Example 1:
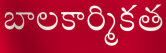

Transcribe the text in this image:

బాలకార్మికత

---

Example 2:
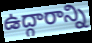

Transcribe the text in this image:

ఉద్గారాన్ని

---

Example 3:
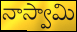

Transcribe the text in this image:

నాస్వామి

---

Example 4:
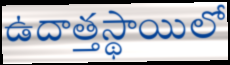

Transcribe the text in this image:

ఉదాత్తస్థాయిలో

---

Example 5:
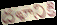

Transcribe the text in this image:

దళానికి